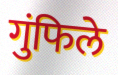
गुंफिले